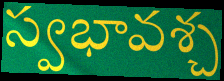
స్వభావశ్చ